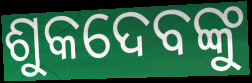
ଶୁକଦେବଙ୍କୁ